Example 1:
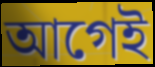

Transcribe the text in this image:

আগেই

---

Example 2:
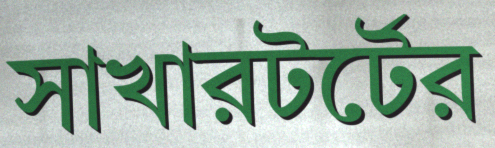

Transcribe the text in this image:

সাখারটর্টের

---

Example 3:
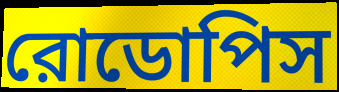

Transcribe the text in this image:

রোডোপিস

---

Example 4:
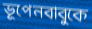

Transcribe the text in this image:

ভূপেনবাবুকে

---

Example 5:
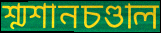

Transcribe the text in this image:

শ্মশানচণ্ডাল